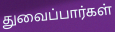
துவைப்பார்கள்